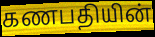
கணபதியின்